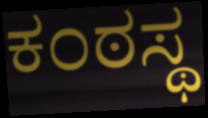
ಕಂಠಸ್ಥ